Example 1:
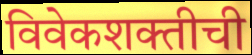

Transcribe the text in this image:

विवेकशक्तीची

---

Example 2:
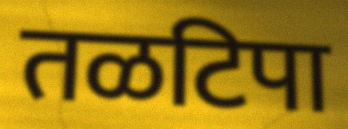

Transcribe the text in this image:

तळटिपा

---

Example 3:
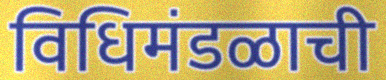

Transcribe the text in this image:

विधिमंडळाची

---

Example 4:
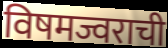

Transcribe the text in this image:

विषमज्वराची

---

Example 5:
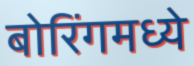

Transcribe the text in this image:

बोरिंगमध्ये